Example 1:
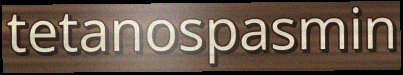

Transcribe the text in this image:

tetanospasmin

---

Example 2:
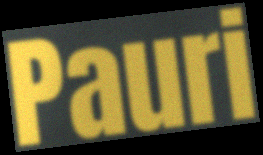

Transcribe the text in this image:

Pauri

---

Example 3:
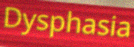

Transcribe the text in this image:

Dysphasia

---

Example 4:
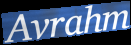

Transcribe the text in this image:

Avrahm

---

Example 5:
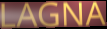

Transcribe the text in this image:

LAGNA